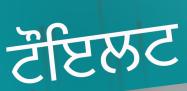
ਟੌਇਲਟ